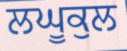
ਲਘੂਕੁਲ